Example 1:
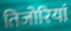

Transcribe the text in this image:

तिजोरियां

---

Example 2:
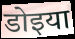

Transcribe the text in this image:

डोइया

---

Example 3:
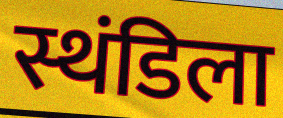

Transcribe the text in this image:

स्थंडिला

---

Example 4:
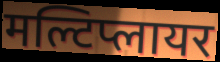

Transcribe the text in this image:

मल्टिप्लायर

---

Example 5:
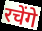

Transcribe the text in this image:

रचेंगे